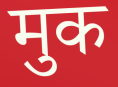
मुक